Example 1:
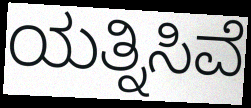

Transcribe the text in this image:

ಯತ್ನಿಸಿವೆ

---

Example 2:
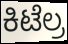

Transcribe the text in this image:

ಕಿಟೆಲ್ರ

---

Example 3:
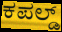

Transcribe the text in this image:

ಕಪಲ್ಡ್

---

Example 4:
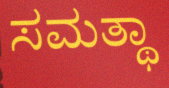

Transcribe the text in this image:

ಸಮತ್ಥಾ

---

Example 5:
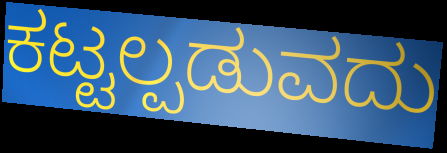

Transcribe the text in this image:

ಕಟ್ಟಲ್ಪಡುವದು